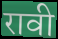
रावी